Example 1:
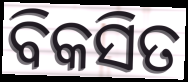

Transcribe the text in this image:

ବିକସିତ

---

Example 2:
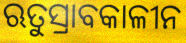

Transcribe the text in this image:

ଋତୁସ୍ରାବକାଳୀନ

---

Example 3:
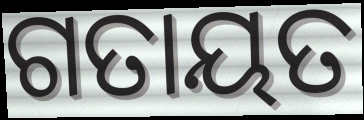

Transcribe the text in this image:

ଗତାୟତ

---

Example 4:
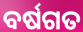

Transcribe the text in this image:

ବର୍ଷଗତ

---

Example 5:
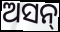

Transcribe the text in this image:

ଅସନ୍